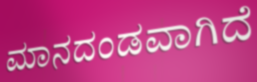
ಮಾನದಂಡವಾಗಿದೆ